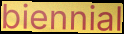
biennial